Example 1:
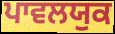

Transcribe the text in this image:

ਪਾਵਲਯੁਕ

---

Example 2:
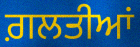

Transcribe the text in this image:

ਗ਼ਲਤੀਆਂ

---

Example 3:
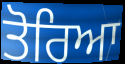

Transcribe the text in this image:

ਤੋਰਿਆ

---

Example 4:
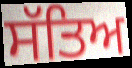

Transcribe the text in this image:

ਸੱਤਿਅ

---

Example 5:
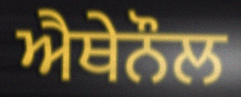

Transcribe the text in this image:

ਐਥੇਨੌਲ